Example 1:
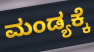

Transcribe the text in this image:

ಮಂಡ್ಯಕ್ಕೆ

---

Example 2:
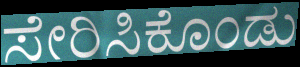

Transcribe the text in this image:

ಸೇರಿಸಿಕೊಂಡು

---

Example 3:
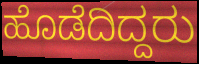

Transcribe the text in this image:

ಹೊಡೆದಿದ್ದರು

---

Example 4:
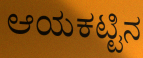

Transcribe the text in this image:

ಆಯಕಟ್ಟಿನ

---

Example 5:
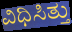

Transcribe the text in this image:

ವಿಧಿಸಿತ್ತು